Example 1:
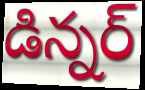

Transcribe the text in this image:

డిన్నర్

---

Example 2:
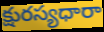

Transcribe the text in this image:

క్షురస్యధారా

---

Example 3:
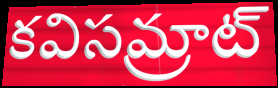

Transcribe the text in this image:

కవిసమ్రాట్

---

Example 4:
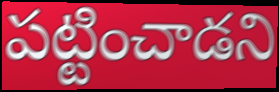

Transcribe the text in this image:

పట్టించాడని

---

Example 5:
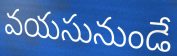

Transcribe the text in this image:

వయసునుండే